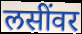
लसींवर